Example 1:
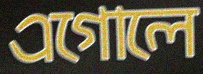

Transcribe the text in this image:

এগোলে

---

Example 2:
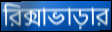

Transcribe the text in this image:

রিক্সাভাড়ার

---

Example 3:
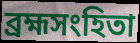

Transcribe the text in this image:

ব্রহ্মসংহিতা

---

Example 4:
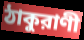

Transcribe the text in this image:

ঠাকুরাণী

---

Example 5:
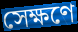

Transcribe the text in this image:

সেক্ষণে